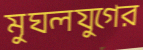
মুঘলযুগের